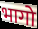
भागो